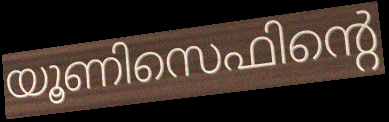
യൂണിസെഫിന്റെ